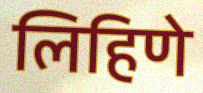
लिहिणे